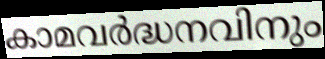
കാമവർദ്ധനവിനും